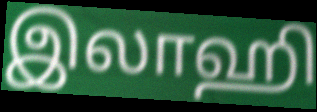
இலாஹி